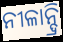
ନୀଳାନ୍ଦ୍ରି